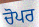
ਚੋਪਰ